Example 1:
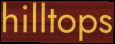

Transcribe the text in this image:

hilltops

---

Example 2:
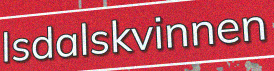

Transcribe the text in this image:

Isdalskvinnen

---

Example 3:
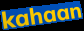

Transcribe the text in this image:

kahaan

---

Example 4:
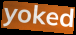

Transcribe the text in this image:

yoked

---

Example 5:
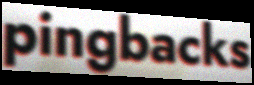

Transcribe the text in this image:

pingbacks